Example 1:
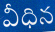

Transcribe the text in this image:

వీధిన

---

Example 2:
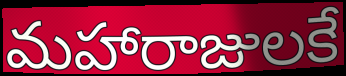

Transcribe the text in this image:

మహారాజులకే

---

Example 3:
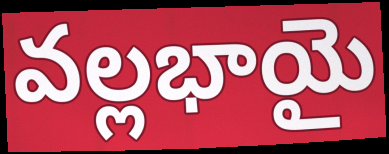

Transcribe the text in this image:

వల్లభాయై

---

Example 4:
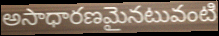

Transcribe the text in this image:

అసాధారణమైనటువంటి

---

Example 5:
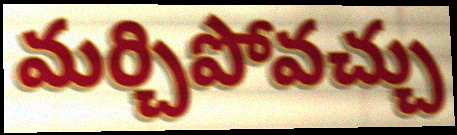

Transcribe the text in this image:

మర్చిపోవచ్చు